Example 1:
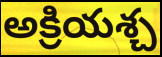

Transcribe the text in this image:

అక్రియశ్చ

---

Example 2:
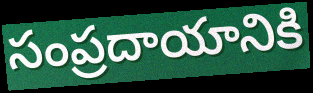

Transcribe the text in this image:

సంప్రదాయానికి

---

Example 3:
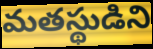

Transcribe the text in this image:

మతస్థుడిని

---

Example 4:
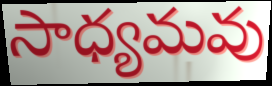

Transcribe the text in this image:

సాధ్యమవు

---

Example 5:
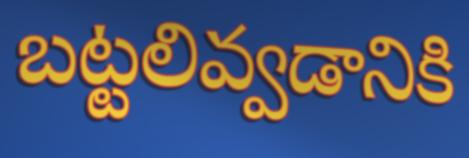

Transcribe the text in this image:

బట్టలివ్వడానికి